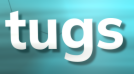
tugs